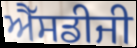
ਐੱਸਡੀਜੀ